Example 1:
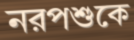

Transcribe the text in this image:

নরপশুকে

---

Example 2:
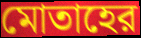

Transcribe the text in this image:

মোতাহের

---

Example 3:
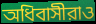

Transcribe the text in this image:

অধিবাসীরাও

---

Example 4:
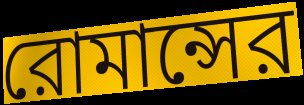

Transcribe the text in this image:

রোমান্সের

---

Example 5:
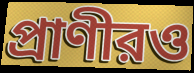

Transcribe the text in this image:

প্রাণীরও